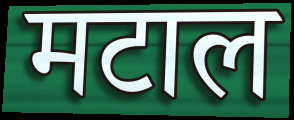
मटाल